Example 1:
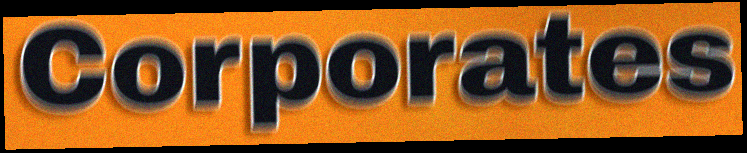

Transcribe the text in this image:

Corporates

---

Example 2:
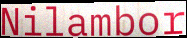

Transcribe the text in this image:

Nilambor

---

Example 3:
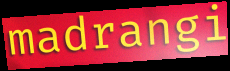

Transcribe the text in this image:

madrangi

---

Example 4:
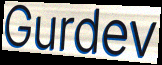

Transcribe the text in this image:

Gurdev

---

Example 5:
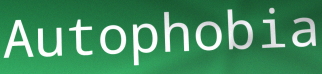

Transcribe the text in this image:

Autophobia